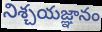
నిశ్చయజ్ఞానం